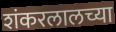
शंकरलालच्या